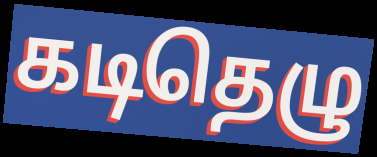
கடிதெழு